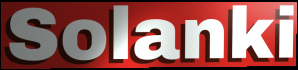
Solanki